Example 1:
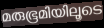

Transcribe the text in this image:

മരുഭൂമിയിലൂടെ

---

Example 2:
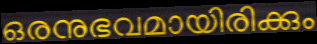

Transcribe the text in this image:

ഒരനുഭവമായിരിക്കും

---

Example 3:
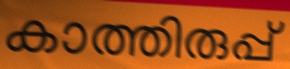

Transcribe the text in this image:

കാത്തിരുപ്പ്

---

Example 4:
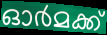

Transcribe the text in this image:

ഓർമക്ക്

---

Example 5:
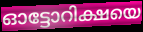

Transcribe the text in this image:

ഓട്ടോറിക്ഷയെ